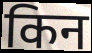
किन